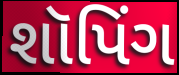
શૉપિંગ